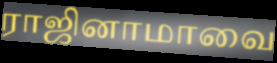
ராஜினாமாவை